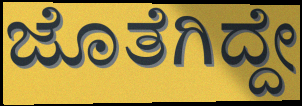
ಜೊತೆಗಿದ್ದೇ